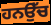
ਹਨਉੱਚ